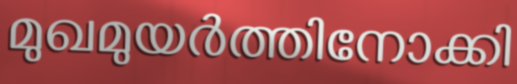
മുഖമുയർത്തിനോക്കി